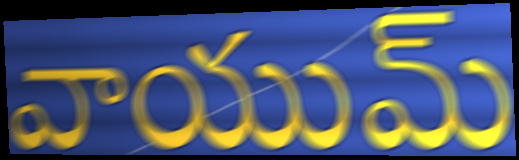
వాయుమ్